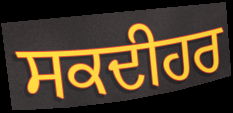
ਸਕਦੀਹਰ